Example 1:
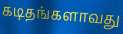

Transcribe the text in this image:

கடிதங்களாவது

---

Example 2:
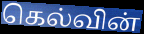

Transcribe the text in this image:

கெல்வின்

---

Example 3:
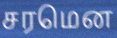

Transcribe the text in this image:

சரமென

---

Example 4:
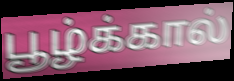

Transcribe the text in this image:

பூழ்க்கால்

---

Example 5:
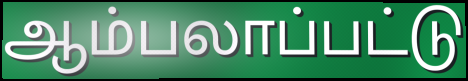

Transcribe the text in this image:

ஆம்பலாப்பட்டு